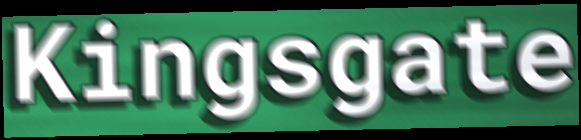
Kingsgate